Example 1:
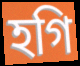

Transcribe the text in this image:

হগি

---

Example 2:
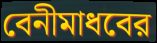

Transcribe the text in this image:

বেনীমাধবের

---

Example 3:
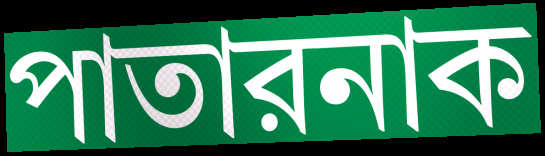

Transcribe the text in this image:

পাতারনাক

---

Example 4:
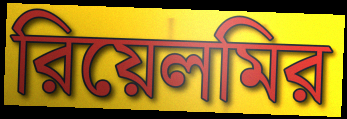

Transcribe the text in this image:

রিয়েলমির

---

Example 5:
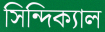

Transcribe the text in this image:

সিন্দিক্যাল